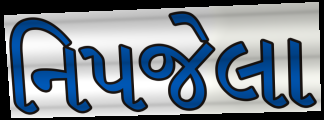
નિપજેલા